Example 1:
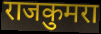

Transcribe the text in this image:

राजकुमरा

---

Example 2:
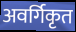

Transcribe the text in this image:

अवर्गिकृत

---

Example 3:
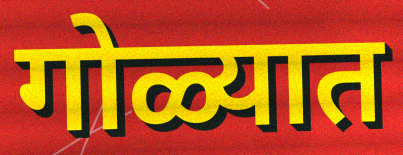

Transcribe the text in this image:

गोळ्यात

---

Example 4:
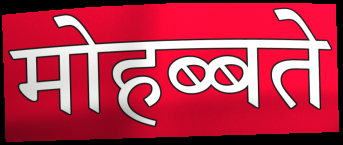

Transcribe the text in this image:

मोहब्बते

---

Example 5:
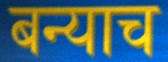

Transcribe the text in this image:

बन्याच